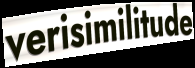
verisimilitude